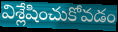
విశ్లేషించుకోవడం